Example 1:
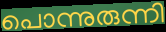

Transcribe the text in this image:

പൊന്നുരുന്നി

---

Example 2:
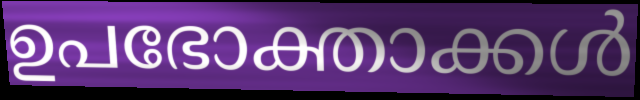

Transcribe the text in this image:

ഉപഭോക്താക്കൾ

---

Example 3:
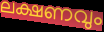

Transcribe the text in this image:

ലക്ഷണവും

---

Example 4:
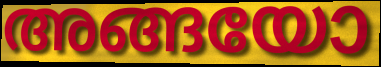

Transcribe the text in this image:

അങ്ങയോ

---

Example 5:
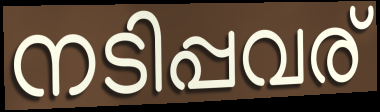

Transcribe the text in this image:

നടിപ്പവര്